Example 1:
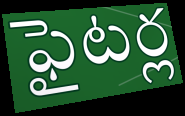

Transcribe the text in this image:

ఫైటర్ల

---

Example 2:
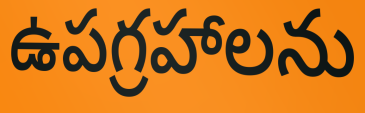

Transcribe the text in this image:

ఉపగ్రహాలను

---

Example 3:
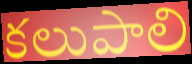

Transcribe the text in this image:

కలుపాలి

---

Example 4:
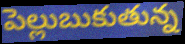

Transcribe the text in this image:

పెల్లుబుకుతున్న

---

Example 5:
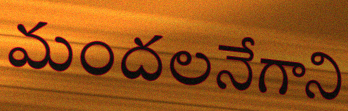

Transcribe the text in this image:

మందలనేగాని